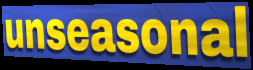
unseasonal